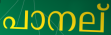
പാനല്